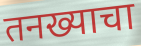
तनख्याचा